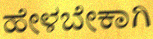
ಹೇಳಬೇಕಾಗಿ